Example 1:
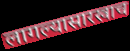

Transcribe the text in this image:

लागल्यासारखाच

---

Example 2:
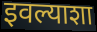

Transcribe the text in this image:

इवल्याशा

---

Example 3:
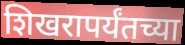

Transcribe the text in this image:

शिखरापर्यंतच्या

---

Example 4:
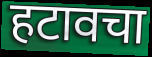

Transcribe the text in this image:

हटावचा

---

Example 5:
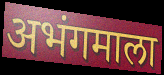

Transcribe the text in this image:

अभंगमाला